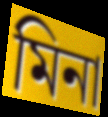
মিনা